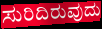
ಸುರಿದಿರುವುದು